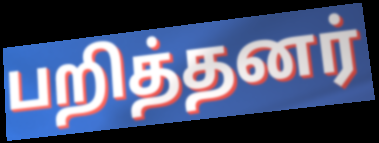
பறித்தனர்